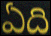
ఏది